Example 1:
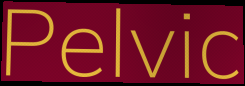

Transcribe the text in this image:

Pelvic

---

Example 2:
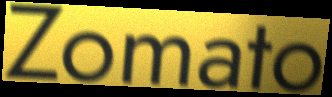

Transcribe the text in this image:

Zomato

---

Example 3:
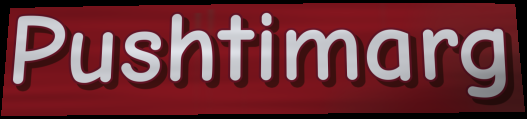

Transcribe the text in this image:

Pushtimarg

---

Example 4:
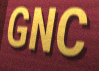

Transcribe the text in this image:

GNC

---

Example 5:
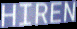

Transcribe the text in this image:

HIREN